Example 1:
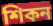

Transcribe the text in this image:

শিকন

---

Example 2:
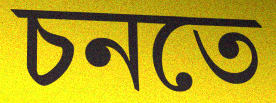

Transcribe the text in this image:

চনতে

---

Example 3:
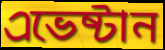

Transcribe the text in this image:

এভেষ্টান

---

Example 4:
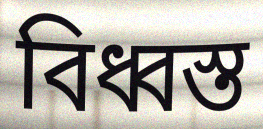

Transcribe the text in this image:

বিধ্বস্ত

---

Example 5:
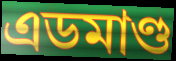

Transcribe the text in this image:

এডমাণ্ড